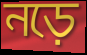
নড়ে